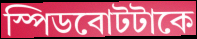
স্পিডবোটটাকে